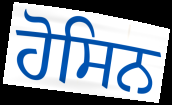
ਹੋਸਿਨ